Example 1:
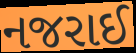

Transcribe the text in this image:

નજરાઈ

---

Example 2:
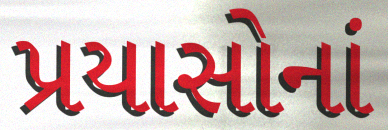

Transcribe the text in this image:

પ્રયાસોનાં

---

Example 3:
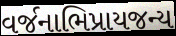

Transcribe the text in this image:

વર્જનાભિપ્રાયજન્ય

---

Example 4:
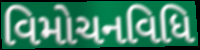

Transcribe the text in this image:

વિમોચનવિધિ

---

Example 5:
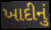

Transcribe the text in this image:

ખાદીનું